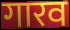
गारव